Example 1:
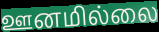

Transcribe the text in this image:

ஊனமில்லை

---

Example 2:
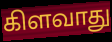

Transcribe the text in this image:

கிளவாது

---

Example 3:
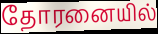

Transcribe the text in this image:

தோரனையில்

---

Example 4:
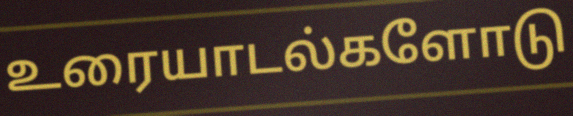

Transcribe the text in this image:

உரையாடல்களோடு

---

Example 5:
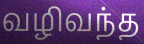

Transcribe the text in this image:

வழிவந்த